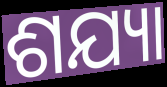
ଶଯ୍ୟା